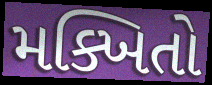
મક્ખિતો